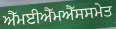
ਐੱਮਈਐੱਮਐੱਸਸਮੇਤ